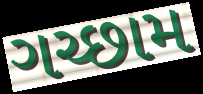
ગચ્છામ